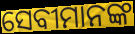
ସେବୀମାନଙ୍କ